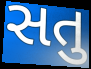
સતુ